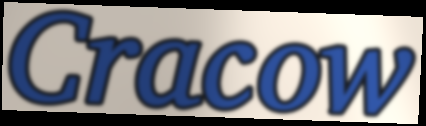
Cracow